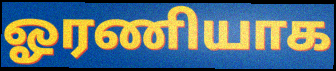
ஓரணியாக